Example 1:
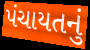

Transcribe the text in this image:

પંચાયતનું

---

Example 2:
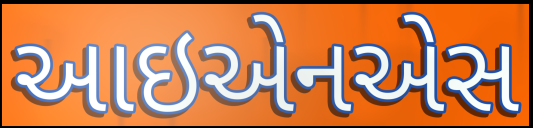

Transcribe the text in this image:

આઇએનએસ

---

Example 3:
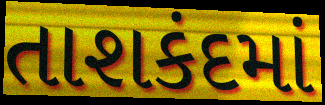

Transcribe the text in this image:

તાશકંદમાં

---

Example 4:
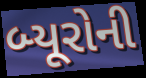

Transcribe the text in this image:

બ્યૂરોની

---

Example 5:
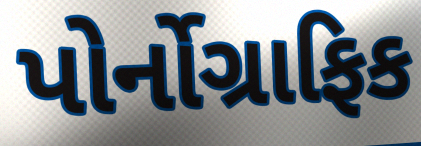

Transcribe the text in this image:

પોર્નોગ્રાફિક